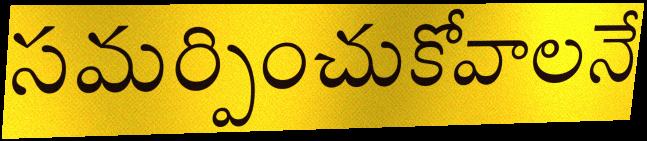
సమర్పించుకోవాలనే